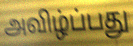
அவிழ்ப்பது